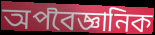
অপবৈজ্ঞানিক